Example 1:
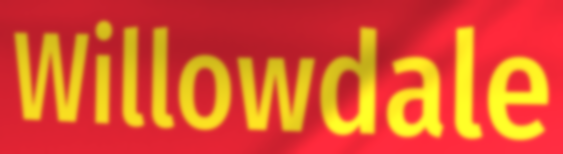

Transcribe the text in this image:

Willowdale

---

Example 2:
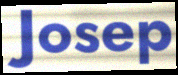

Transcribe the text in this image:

Josep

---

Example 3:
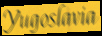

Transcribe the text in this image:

Yugoslavia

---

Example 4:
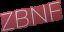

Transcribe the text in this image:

ZBNF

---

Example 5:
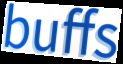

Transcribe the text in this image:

buffs